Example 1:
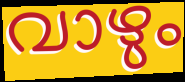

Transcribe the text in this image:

വാഴും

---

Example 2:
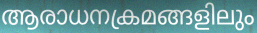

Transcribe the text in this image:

ആരാധനക്രമങ്ങളിലും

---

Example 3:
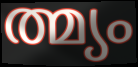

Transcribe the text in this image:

ത്മ്യം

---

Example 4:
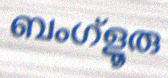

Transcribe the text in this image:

ബംഗ്ളൂരു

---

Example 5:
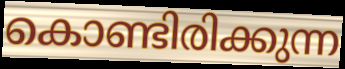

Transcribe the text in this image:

കൊണ്ടിരിക്കുന്ന